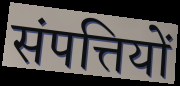
संपत्तियों